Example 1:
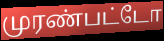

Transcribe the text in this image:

முரண்பட்டோ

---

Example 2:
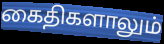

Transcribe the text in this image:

கைதிகளாலும்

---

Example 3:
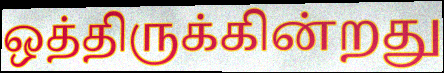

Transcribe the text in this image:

ஒத்திருக்கின்றது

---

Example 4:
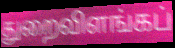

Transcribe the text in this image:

துறைவிளங்கப்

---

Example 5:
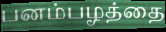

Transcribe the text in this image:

பனம்பழத்தை